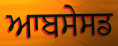
ਆਬਸੇਸਡ